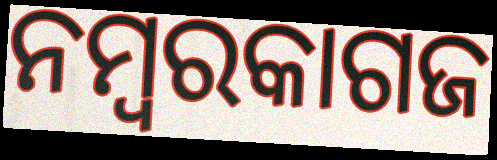
ନମ୍ବରକାଗଜ